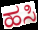
ಹಸಿ